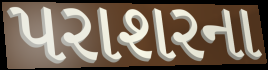
પરાશરના